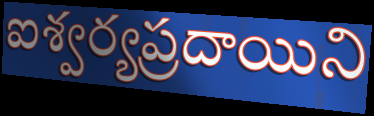
ఐశ్వర్యప్రదాయిని